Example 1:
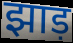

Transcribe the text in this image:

झाड़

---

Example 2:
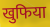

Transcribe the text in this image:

खुफिया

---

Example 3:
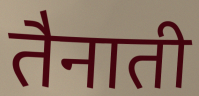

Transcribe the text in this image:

तैनाती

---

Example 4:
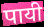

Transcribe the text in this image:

पायी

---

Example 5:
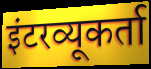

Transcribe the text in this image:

इंटरव्यूकर्ता